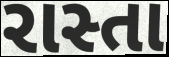
રાસ્તા